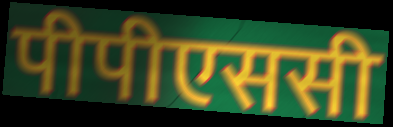
पीपीएससी